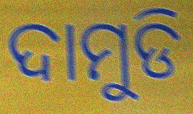
ଦାମୁଡି